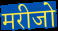
मरीजो